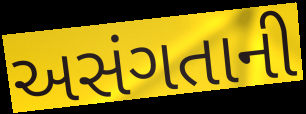
અસંગતાની